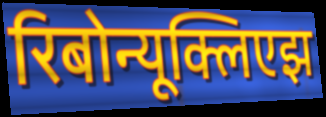
रिबोन्यूक्लिएझ